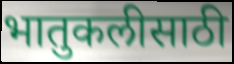
भातुकलीसाठी